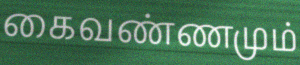
கைவண்ணமும்